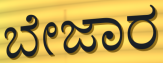
ಬೇಜಾರ